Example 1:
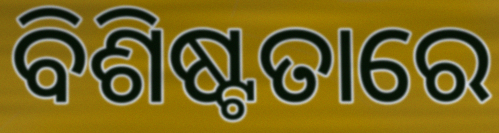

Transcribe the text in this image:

ବିଶିଷ୍ଟତାରେ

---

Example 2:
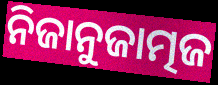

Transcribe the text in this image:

ନିଜାନୁଜାତ୍ମଜ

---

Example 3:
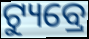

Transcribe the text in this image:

ଟ୍ୟୁବ୍ରେ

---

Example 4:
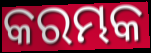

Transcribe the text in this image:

କରମ୍ଭକ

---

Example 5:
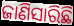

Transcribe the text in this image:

ଜାଣିସାରିଛି